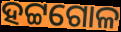
ହଟ୍ଟଗୋଳ